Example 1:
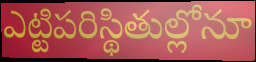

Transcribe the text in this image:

ఎట్టిపరిస్థితుల్లోనూ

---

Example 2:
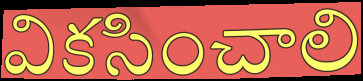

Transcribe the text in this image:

వికసించాలి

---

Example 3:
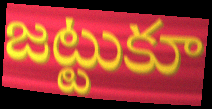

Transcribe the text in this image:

జట్టుకూ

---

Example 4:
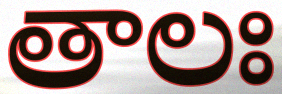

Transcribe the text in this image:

తాలః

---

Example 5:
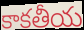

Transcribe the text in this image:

కాకతీయ